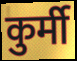
कुर्मी